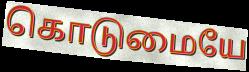
கொடுமையே